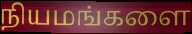
நியமங்களை